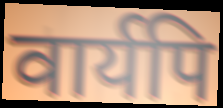
वार्यपि